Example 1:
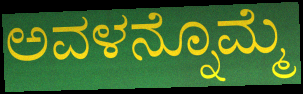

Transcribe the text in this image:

ಅವಳನ್ನೊಮ್ಮೆ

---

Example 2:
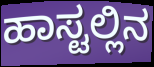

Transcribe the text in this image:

ಹಾಸ್ಟಲ್ಲಿನ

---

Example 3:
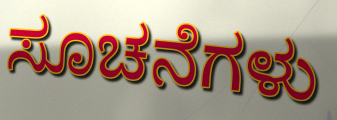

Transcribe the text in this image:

ಸೂಚನೆಗಳು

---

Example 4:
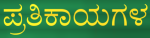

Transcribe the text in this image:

ಪ್ರತಿಕಾಯಗಳ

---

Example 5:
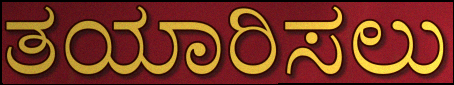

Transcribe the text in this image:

ತಯಾರಿಸಲು